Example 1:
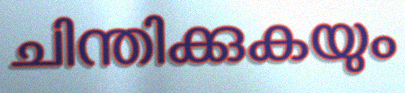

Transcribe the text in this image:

ചിന്തിക്കുകയും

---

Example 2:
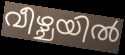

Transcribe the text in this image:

വീഴ്ചയിൽ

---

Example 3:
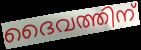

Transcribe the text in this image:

ദൈവത്തിന്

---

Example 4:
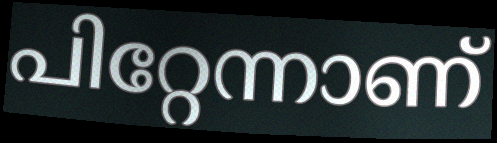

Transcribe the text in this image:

പിറ്റേന്നാണ്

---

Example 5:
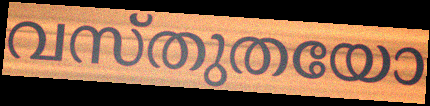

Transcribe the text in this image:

വസ്തുതയോ